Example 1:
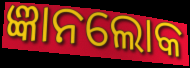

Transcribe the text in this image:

ଜ୍ଞାନଲୋକ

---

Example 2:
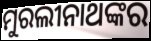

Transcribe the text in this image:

ମୁରଲୀନାଥଙ୍କର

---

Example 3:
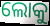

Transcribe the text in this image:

ଲୋକୁ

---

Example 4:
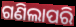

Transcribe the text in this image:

ଗଣିଲାପରି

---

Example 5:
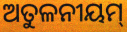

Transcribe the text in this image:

ଅତୁଳନୀୟମ୍